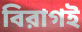
বিরাগই